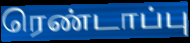
ரெண்டாப்பு